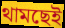
থামছেই